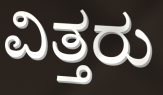
ವಿತ್ತರು